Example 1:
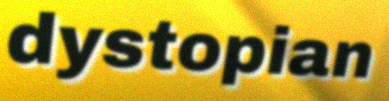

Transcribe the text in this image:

dystopian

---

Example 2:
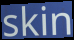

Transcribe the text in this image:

skin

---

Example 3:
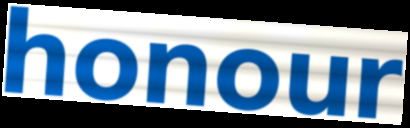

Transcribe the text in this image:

honour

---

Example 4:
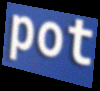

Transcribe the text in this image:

pot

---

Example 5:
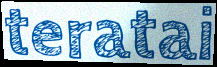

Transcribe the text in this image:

teratai